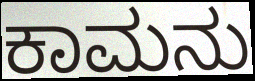
ಕಾಮನು